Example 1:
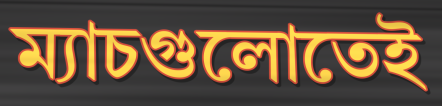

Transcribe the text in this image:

ম্যাচগুলোতেই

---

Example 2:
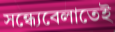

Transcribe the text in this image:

সন্ধ্যেবেলাতেই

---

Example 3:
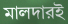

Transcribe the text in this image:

মালদারই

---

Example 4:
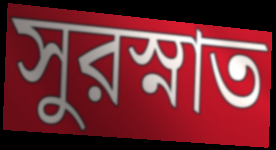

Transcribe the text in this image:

সুরস্নাত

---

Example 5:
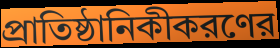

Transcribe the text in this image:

প্রাতিষ্ঠানিকীকরণের